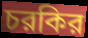
চরকির